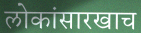
लोकांसारखाच